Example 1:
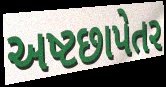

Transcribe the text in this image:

અષ્ટછાપેતર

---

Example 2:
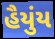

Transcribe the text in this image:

હૈયુંય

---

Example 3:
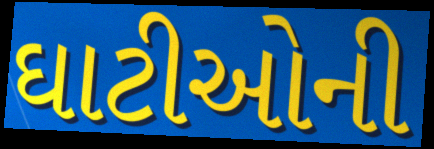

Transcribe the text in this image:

ઘાટીઓની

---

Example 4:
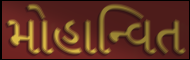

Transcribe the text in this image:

મોહાન્વિત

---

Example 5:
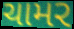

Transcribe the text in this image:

ચામર